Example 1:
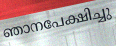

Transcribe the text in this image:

ഞാനപേക്ഷിച്ചു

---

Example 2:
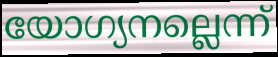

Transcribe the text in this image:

യോഗ്യനല്ലെന്ന്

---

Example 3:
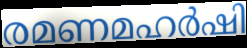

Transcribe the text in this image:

രമണമഹർഷി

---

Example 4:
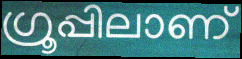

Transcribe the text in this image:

ഗ്രൂപ്പിലാണ്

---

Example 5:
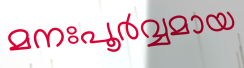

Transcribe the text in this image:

മനഃപൂർവ്വമായ